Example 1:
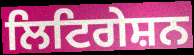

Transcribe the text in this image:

ਲਿਟਿਗੇਸ਼ਨ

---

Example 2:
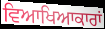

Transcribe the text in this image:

ਵਿਆਖਿਆਕਾਰਾਂ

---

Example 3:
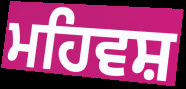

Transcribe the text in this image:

ਮਹਿਵਸ਼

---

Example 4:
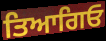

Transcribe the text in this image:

ਤਿਆਗਿਓ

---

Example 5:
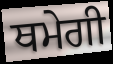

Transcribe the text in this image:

ਥਮੇਗੀ